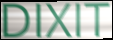
DIXIT